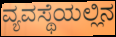
ವ್ಯವಸ್ಥೆಯಲ್ಲಿನ